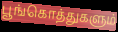
பூங்கொத்துகளும்